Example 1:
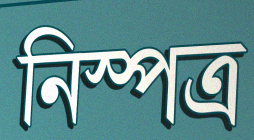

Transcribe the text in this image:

নিস্পত্র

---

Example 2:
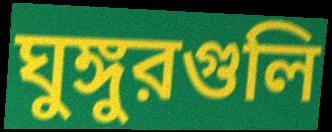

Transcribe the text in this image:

ঘুঙ্গুরগুলি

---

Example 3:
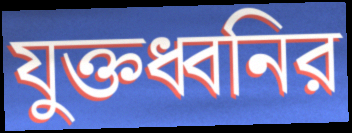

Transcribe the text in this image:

যুক্তধ্বনির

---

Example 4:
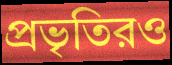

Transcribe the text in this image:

প্রভৃতিরও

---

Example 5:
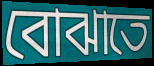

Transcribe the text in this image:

বোঝাতে